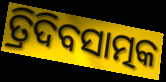
ତ୍ରିଦିବସାତ୍ମକ